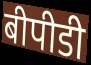
बीपीडी